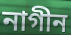
নাগীন